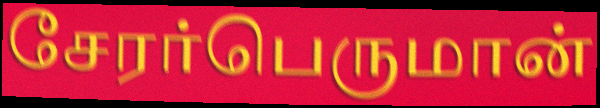
சேரர்பெருமான்